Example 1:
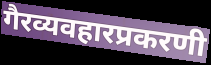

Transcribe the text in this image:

गैरव्यवहारप्रकरणी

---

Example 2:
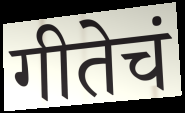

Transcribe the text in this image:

गीतेचं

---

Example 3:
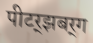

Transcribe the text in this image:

पीटर्झबर्ग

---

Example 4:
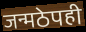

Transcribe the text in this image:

जन्मठेपही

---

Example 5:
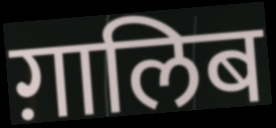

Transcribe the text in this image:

ग़ालिब